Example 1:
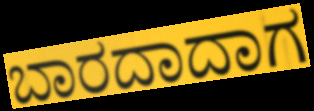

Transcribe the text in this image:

ಬಾರದಾದಾಗ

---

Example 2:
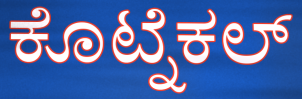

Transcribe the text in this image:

ಕೊಟ್ನೆಕಲ್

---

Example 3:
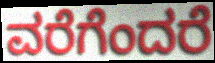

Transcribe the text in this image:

ವರೆಗೆಂದರೆ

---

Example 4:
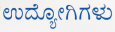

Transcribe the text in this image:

ಉದ್ಯೋಗಿಗಳು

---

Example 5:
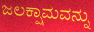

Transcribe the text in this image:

ಜಲಕ್ಷಾಮವನ್ನು